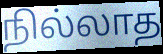
நில்லாத